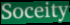
Soceity